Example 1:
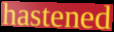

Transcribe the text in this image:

hastened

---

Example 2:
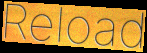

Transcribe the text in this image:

Reload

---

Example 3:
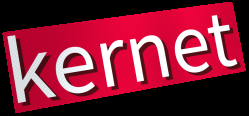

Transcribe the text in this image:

kernet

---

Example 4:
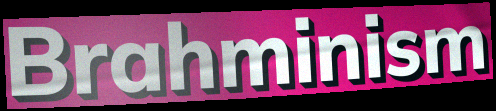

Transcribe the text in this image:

Brahminism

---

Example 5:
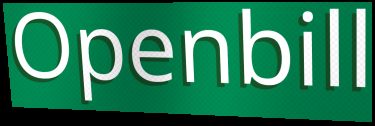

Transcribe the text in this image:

Openbill